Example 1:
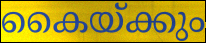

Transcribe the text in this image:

കൈയ്ക്കും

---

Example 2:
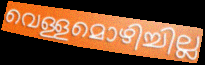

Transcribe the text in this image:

വെള്ളമൊഴിച്ചില്ല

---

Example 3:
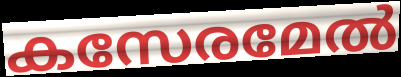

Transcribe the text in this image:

കസേരമേൽ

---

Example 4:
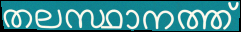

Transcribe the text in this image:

തലസ്ഥാനത്ത്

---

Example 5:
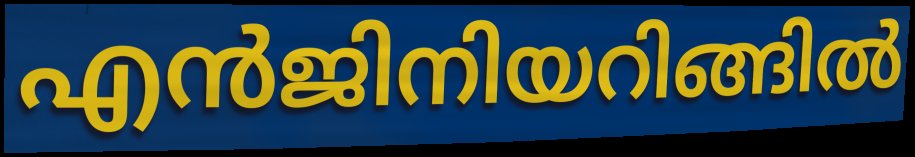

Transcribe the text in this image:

എൻജിനിയറിങ്ങിൽ